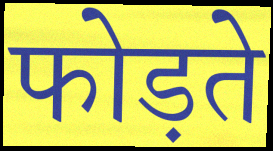
फोड़ते